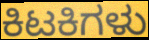
ಕಿಟಕಿಗಳು